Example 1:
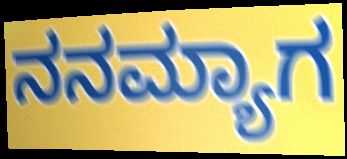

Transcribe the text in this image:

ನನಮ್ಯಾಗ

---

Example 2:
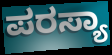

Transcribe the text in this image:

ಪರಸ್ಯಾ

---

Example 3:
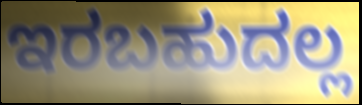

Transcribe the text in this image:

ಇರಬಹುದಲ್ಲ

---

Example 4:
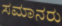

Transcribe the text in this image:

ಸಮಾನರು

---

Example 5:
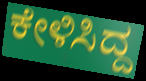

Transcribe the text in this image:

ಕೇಳಿಸಿದ್ದ